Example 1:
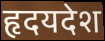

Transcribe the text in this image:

हृदयदेश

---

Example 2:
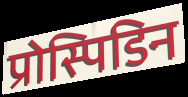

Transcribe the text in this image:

प्रोस्पिडिन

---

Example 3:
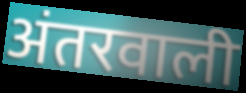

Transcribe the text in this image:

अंतरवाली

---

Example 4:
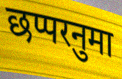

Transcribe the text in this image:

छप्परनुमा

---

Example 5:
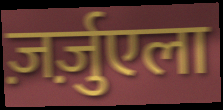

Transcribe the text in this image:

ज़र्ज़ुएला